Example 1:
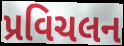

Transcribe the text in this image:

પ્રવિચલન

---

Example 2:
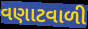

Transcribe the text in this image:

વણાટવાળી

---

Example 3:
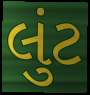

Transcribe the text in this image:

લુંટ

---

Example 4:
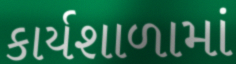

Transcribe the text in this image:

કાર્યશાળામાં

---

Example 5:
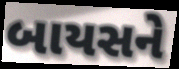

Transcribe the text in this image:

બાયસને